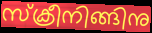
സ്ക്രീനിങ്ങിനു